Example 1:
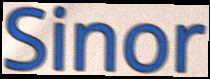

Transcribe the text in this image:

Sinor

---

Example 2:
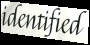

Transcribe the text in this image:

identified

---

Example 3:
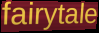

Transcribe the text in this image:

fairytale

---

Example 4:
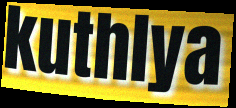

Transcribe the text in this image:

kuthlya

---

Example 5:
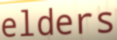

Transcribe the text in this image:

elders